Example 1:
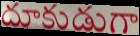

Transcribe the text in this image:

దూకుడుగా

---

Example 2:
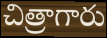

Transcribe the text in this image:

చిత్రాగారు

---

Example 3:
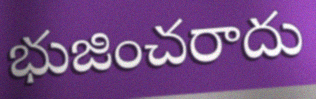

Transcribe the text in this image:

భుజించరాదు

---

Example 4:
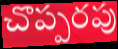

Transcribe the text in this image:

చొప్పరపు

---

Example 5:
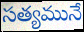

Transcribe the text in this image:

సత్యమునే